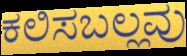
ಕಲಿಸಬಲ್ಲವು